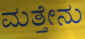
ಮತ್ತೇನು